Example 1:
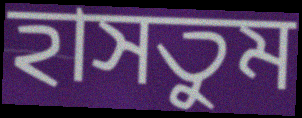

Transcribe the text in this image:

হাসতুম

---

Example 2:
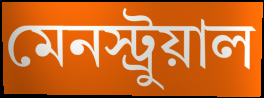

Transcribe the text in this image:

মেনস্ট্রুয়াল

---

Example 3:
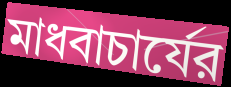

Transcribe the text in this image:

মাধবাচার্যের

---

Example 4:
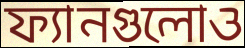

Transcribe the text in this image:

ফ্যানগুলোও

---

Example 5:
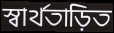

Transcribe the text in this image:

স্বার্থতাড়িত